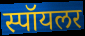
स्पॉयलर